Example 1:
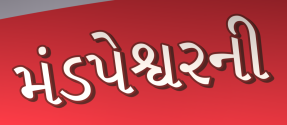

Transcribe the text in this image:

મંડપેશ્વરની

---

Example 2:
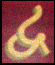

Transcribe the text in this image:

દ્વ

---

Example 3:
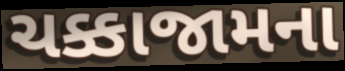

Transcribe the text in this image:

ચક્કાજામના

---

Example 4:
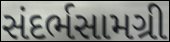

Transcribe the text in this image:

સંદર્ભસામગ્રી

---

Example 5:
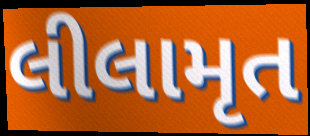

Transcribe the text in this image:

લીલામૃત